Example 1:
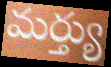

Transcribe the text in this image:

మర్త్యు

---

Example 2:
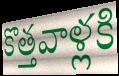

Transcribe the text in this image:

కొత్తవాళ్లకి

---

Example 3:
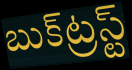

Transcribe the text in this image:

బుక్‌ట్రస్ట్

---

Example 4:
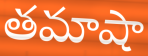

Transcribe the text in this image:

తమాషా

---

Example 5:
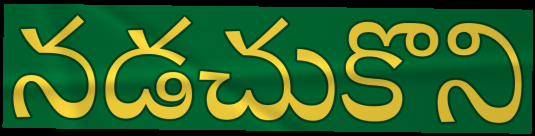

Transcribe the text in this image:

నడచుకొని